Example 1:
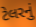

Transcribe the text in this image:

ટેલરનું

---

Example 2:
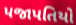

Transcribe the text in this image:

પજાપતિયો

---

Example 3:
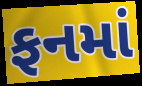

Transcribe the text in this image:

ફનમાં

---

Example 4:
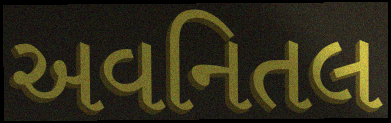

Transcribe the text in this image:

અવનિતલ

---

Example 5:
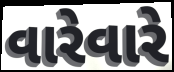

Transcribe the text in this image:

વારેવારે